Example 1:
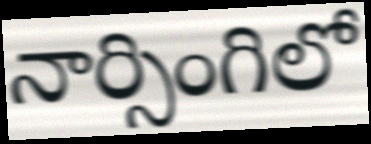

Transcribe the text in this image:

నార్సింగిలో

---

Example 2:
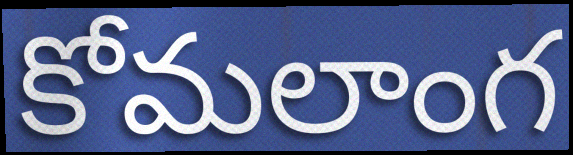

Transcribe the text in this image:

కోమలాంగ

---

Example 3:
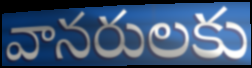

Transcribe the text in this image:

వానరులకు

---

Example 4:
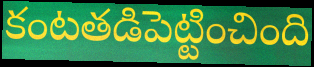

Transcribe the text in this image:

కంటతడిపెట్టించింది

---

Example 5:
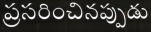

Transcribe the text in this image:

ప్రసరించినప్పుడు